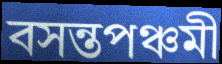
বসন্তপঞ্চমী